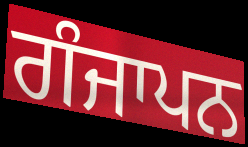
ਗੰਜਾਪਨ